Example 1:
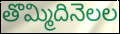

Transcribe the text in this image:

తొమ్మిదినెలల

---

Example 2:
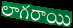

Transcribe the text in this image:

లాగరాయి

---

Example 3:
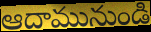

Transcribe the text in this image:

ఆదామునుండి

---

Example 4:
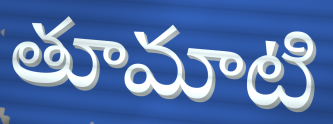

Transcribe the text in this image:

తూమాటి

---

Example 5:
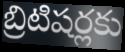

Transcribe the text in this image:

బ్రిటిషర్లకు